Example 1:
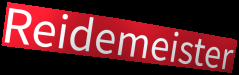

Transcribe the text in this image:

Reidemeister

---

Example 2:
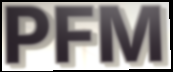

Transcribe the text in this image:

PFM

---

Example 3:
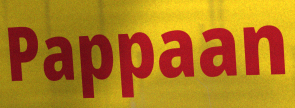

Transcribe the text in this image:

Pappaan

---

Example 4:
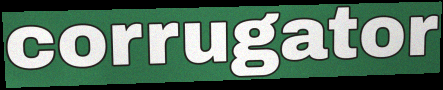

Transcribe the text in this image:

corrugator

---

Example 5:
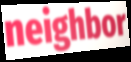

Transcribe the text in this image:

neighbor